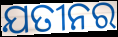
ଯତୀନର